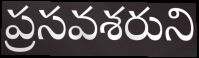
ప్రసవశరుని